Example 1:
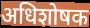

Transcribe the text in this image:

अधिशोषक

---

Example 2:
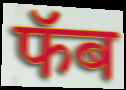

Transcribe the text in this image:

फॅब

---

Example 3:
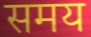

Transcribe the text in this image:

समय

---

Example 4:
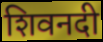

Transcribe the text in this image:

शिवनदी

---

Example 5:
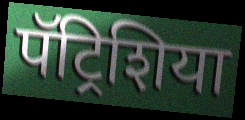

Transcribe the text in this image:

पॅट्रिशिया